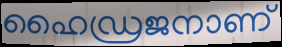
ഹൈഡ്രജനാണ്